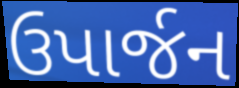
ઉપાર્જન